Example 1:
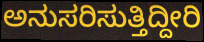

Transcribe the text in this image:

ಅನುಸರಿಸುತ್ತಿದ್ದೀರಿ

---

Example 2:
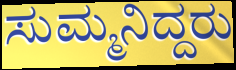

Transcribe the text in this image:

ಸುಮ್ಮನಿದ್ದರು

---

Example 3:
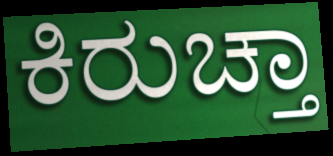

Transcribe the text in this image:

ಕಿರುಚ್ತಾ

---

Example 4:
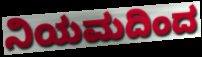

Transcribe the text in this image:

ನಿಯಮದಿಂದ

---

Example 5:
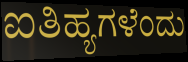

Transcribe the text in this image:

ಐತಿಹ್ಯಗಳೆಂದು